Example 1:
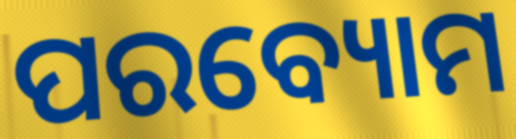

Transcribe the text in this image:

ପରବ୍ୟୋମ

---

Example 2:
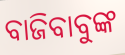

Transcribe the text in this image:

ବାଜିବାବୁଙ୍କ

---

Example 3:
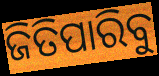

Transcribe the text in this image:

ଜିତିପାରିବୁ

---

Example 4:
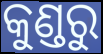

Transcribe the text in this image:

କୁଣ୍ଡରୁ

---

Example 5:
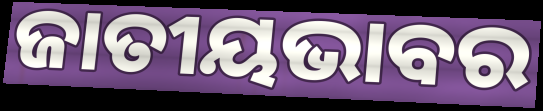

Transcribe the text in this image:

ଜାତୀୟଭାବର